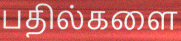
பதில்களை